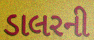
ડાલરની